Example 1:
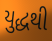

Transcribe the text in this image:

યુદ્ધથી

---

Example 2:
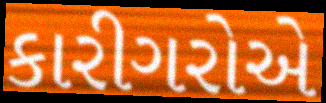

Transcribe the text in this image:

કારીગરોએ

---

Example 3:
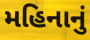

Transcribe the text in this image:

મહિનાનું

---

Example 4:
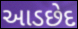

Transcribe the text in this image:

આડછેદ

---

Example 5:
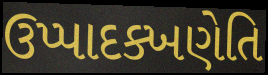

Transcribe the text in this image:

ઉપ્પાદક્ખણેતિ